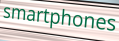
smartphones